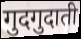
गुदगुदाती